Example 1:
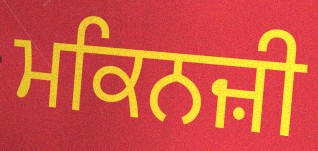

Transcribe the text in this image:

ਮਕਿਨਜ਼ੀ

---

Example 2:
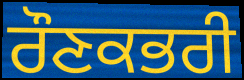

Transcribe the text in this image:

ਰੌਣਕਭਰੀ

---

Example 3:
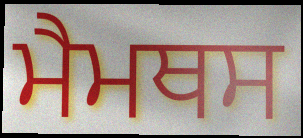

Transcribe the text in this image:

ਮੈਮਥਸ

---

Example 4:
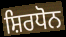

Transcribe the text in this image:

ਸ਼ਿਰਧੋਨ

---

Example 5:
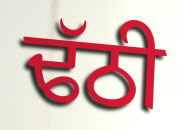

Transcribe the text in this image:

ਢੱਠੀ